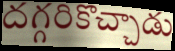
దగ్గరికొచ్చాడు